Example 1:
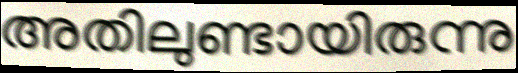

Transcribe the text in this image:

അതിലുണ്ടായിരുന്നു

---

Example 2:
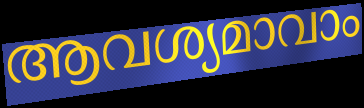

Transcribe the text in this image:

ആവശ്യമാവാം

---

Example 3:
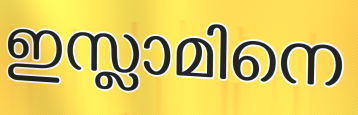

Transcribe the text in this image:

ഇസ്ലാമിനെ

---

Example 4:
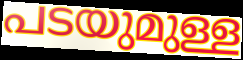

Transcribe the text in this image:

പടയുമുള്ള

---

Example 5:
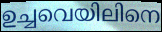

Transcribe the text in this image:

ഉച്ചവെയിലിനെ